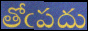
తోఁపదు